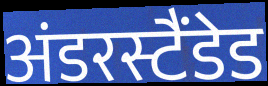
अंडरस्टैंडेड